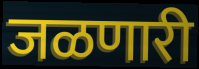
जळणारी